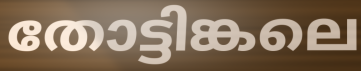
തോട്ടിങ്കലെ